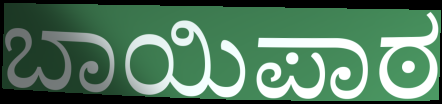
ಬಾಯಿಪಾಠ